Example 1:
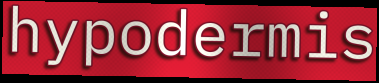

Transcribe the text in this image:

hypodermis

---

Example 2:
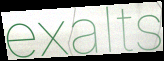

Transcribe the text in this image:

exalts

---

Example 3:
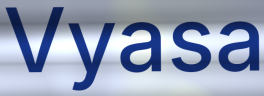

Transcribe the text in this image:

Vyasa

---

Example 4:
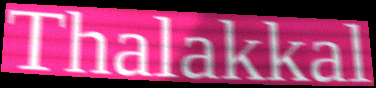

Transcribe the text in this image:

Thalakkal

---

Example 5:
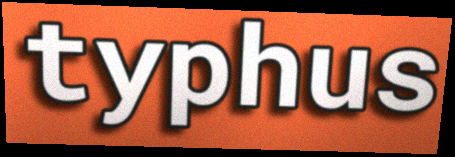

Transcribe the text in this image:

typhus